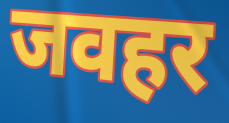
जवहर